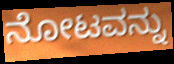
ನೋಟವನ್ನು